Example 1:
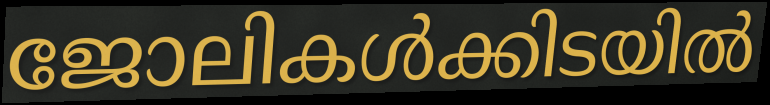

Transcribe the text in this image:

ജോലികൾക്കിടയിൽ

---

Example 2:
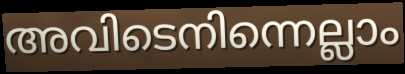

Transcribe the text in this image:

അവിടെനിന്നെല്ലാം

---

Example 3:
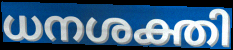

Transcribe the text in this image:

ധനശക്തി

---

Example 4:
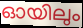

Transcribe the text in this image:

ഓയിലും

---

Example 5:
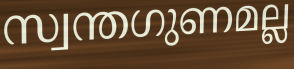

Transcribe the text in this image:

സ്വന്തഗുണമല്ല